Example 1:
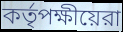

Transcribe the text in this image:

কর্তৃপক্ষীয়েরা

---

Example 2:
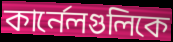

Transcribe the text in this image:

কার্নেলগুলিকে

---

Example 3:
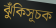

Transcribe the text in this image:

ঝুঁকিসূচক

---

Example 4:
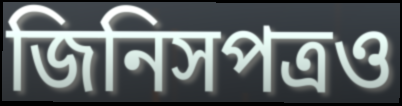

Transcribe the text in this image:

জিনিসপত্রও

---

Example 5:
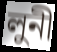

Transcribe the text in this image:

লুনী